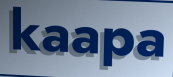
kaapa